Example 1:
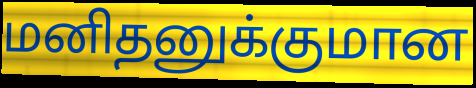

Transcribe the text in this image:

மனிதனுக்குமான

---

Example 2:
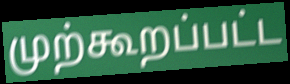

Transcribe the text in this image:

முற்கூறப்பட்ட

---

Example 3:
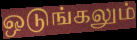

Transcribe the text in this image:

ஒடுங்கலும்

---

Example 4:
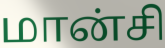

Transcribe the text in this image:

மான்சி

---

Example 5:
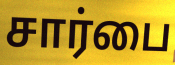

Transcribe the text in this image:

சார்பை